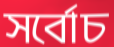
সৰ্বোচ